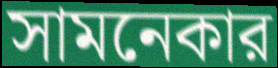
সামনেকার